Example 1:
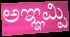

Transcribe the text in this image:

ಅಞ್ಞಮ್ಪಿ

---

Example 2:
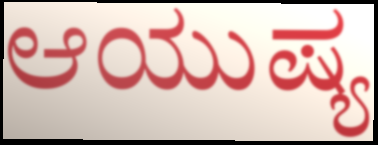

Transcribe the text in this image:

ಆಯುಷ್ಯ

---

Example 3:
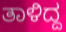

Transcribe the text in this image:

ತಾಳಿದ್ದ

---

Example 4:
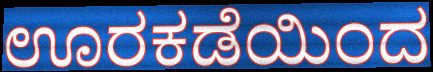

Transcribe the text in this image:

ಊರಕಡೆಯಿಂದ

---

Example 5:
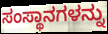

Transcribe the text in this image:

ಸಂಸ್ಥಾನಗಳನ್ನು